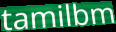
tamilbm